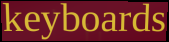
keyboards